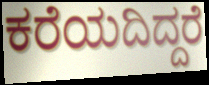
ಕರೆಯದಿದ್ದರೆ